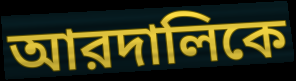
আরদালিকে